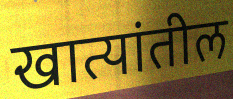
खात्यांतील